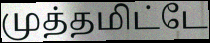
முத்தமிட்டே